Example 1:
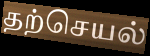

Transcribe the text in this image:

தற்செயல்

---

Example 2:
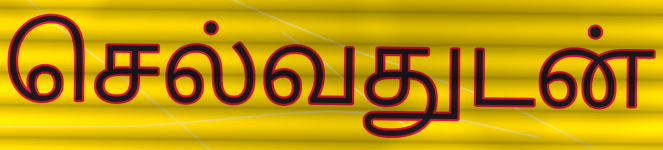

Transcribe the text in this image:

செல்வதுடன்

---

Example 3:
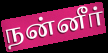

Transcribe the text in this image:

நன்னீர்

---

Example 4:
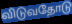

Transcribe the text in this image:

விடுவதோடு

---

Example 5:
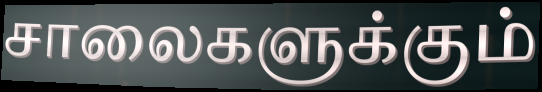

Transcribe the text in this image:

சாலைகளுக்கும்